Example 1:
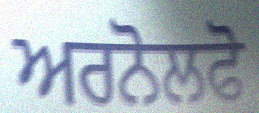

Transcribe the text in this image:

ਅਰਨੋਲਫੋ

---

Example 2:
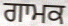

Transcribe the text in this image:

ਗਾਮਕ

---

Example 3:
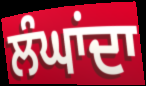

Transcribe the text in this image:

ਲੰਘਾਂਦਾ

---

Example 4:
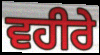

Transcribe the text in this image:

ਵਹੀਰੇ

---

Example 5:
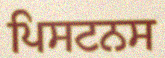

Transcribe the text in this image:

ਪਿਸਟਨਸ